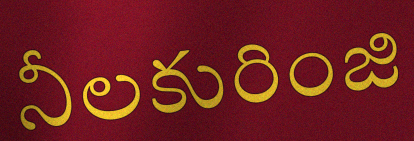
నీలకురింజి